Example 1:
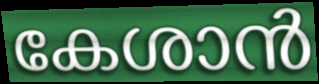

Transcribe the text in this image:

കേശാൻ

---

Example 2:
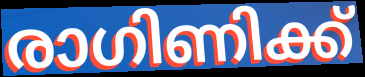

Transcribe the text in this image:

രാഗിണിക്ക്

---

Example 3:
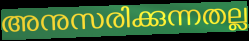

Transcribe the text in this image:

അനുസരിക്കുന്നതല്ല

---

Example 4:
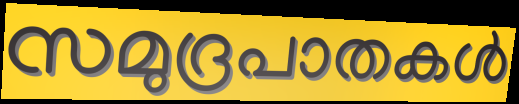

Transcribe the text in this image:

സമുദ്രപാതകൾ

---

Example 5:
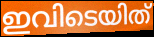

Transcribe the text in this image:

ഇവിടെയിത്